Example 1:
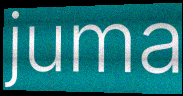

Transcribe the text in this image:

juma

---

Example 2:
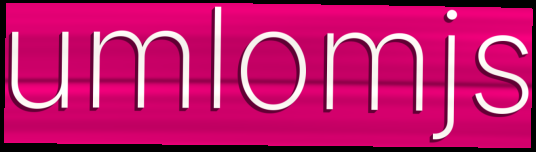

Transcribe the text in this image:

umlomjs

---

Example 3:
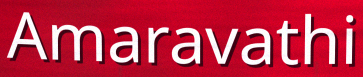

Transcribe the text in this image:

Amaravathi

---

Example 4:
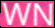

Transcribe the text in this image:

WN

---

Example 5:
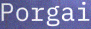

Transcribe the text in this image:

Porgai